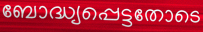
ബോദ്ധ്യപ്പെട്ടതോടെ